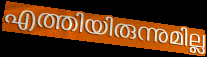
എത്തിയിരുന്നുമില്ല